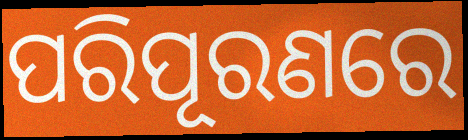
ପରିପୂରଣରେ